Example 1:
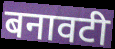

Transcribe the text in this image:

बनावटी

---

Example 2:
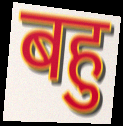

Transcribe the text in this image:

बहु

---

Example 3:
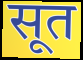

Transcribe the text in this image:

सूत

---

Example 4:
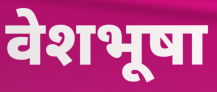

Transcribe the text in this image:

वेशभूषा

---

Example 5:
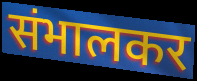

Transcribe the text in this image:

संभालकर